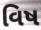
વિષ